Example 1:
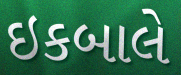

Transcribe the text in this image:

ઇકબાલે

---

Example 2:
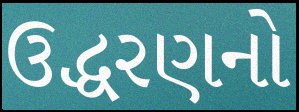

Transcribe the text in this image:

ઉદ્ધરણનો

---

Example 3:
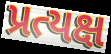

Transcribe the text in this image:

પ્રત્યક્ષ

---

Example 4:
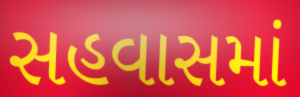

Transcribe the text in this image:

સહવાસમાં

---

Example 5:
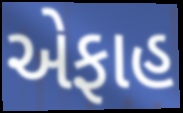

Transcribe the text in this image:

એફાહ